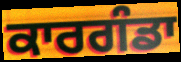
ਕਾਰਗੰਡਾ